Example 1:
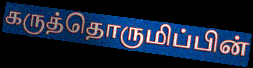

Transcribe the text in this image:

கருத்தொருமிப்பின்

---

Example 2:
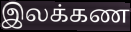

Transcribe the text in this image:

இலக்கண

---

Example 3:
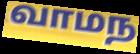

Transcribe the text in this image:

வாமந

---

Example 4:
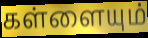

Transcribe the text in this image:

கள்ளையும்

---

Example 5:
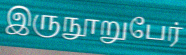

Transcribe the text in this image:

இருநூறுபேர்